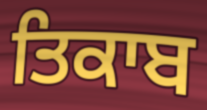
ਤਿਕਾਬ